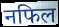
नफिल